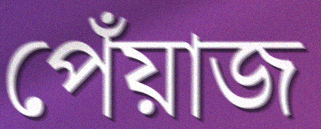
পেঁয়াজ